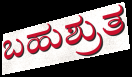
ಬಹುಶ್ರುತ